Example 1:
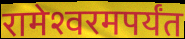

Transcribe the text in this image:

रामेश्वरमपर्यंत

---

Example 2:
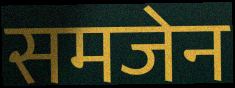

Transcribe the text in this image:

समजेन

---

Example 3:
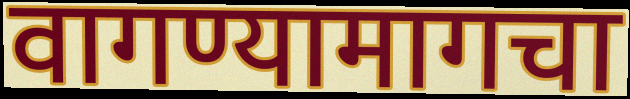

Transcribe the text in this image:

वागण्यामागचा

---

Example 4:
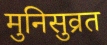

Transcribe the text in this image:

मुनिसुव्रत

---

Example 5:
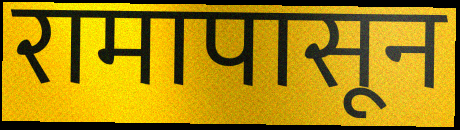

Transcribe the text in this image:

रामापासून